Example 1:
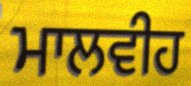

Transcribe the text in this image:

ਮਾਲਵੀਹ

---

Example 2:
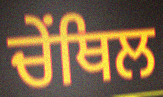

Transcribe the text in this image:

ਚੇਂਥਿਲ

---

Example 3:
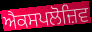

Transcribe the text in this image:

ਐਕਸਪਲੋਜ਼ਿਵ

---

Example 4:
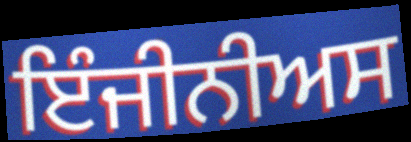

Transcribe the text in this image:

ਇੰਜੀਨੀਅਸ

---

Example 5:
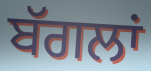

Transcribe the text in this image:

ਬੱਗਲਾਂ